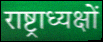
राष्ट्राध्यक्षों